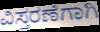
ವಿಸ್ತರಣೆಗಾಗಿ